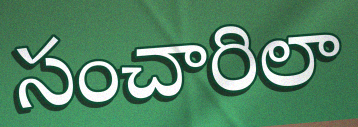
సంచారిలా